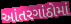
આંતરગાંઠોમાં